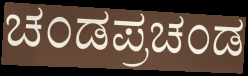
ಚಂಡಪ್ರಚಂಡ